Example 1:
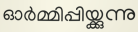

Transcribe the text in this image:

ഓർമ്മിപ്പിയ്ക്കുന്നു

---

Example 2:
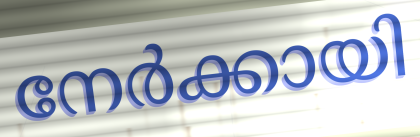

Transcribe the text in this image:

നേർക്കായി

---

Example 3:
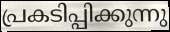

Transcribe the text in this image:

പ്രകടിപ്പിക്കുന്നു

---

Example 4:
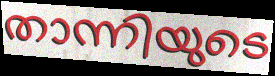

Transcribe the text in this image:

താന്നിയുടെ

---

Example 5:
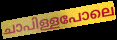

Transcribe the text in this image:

ചാപിള്ളപോലെ